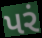
પરં